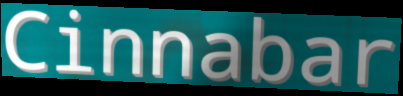
Cinnabar